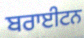
ਬਰਾਈਟਨ